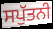
ਸਪੁੱਤਨੀ